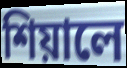
শিয়ালে